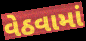
વેઠવામાં